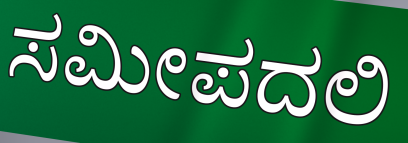
ಸಮೀಪದಲಿ